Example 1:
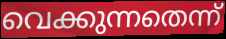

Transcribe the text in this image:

വെക്കുന്നതെന്ന്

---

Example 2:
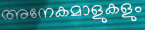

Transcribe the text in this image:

അനേകമാളുകളും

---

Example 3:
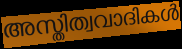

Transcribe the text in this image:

അസ്തിത്വവാദികൾ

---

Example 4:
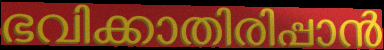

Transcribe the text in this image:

ഭവിക്കാതിരിപ്പാൻ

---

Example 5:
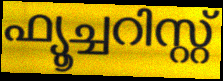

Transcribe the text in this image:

ഫ്യൂച്ചറിസ്റ്റ്